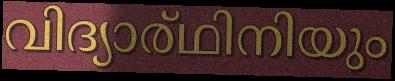
വിദ്യാര്ഥിനിയും